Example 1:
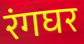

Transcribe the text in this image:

रंगघर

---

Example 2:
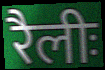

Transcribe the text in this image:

रैलीः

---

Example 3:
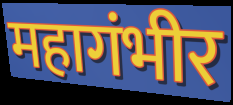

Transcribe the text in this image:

महागंभीर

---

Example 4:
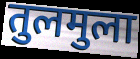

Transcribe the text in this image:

तुलमुला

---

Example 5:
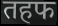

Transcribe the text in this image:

तहफ